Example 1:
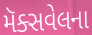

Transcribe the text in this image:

મૅક્સવેલના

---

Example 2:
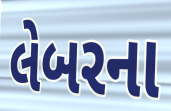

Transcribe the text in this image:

લેબરના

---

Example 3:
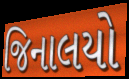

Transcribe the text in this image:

જિનાલયો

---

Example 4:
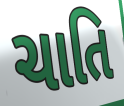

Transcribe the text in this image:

ચાતિ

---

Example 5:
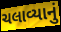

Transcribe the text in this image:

ચલાવ્યાનું